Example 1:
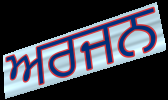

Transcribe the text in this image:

ਅਰਜਨ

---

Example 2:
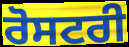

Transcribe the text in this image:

ਰੋਸਟਰੀ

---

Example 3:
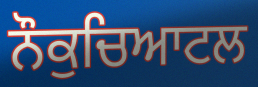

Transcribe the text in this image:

ਨੌਕੁਚਿਆਟਲ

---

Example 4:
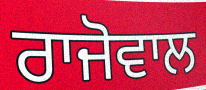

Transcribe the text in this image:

ਰਾਜੋਵਾਲ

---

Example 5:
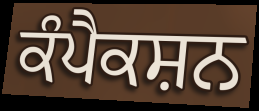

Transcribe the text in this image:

ਕੰਪੈਕਸ਼ਨ